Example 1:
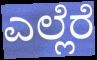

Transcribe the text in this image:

ಎಲ್ಲೆರೆ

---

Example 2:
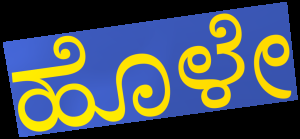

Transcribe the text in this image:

ಹೊಳೇ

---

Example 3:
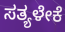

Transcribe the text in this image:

ಸತ್ಯಳೇಕೆ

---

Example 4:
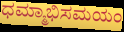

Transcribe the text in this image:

ಧಮ್ಮಾಭಿಸಮಯಂ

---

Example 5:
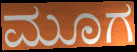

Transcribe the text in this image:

ಮೂಗ